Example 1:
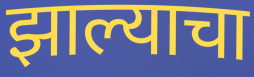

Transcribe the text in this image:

झाल्याचा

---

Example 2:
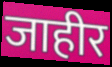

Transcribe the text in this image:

जाहीर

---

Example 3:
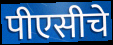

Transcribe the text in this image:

पीएसीचे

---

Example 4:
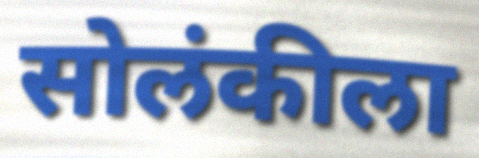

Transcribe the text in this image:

सोलंकीला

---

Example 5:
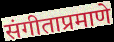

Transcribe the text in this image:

संगीताप्रमाणे